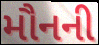
મૌનની